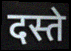
दस्ते